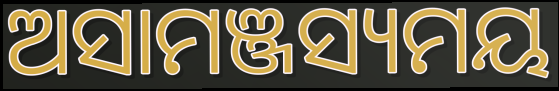
ଅସାମଞ୍ଜସ୍ୟମୟ